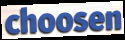
choosen